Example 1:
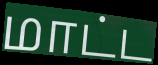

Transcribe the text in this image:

மாட்ட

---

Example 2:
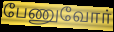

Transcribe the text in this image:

பேணுவோர்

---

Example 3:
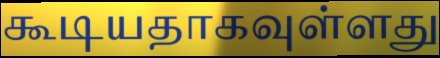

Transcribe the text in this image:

கூடியதாகவுள்ளது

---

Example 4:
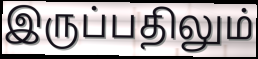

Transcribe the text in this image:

இருப்பதிலும்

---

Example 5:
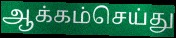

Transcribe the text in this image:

ஆக்கம்செய்து